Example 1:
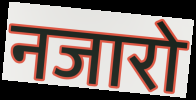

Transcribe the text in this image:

नजारो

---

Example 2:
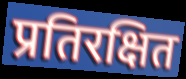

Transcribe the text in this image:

प्रतिरक्षित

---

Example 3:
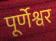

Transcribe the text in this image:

पूर्णेश्वर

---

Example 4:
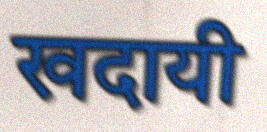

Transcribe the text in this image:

खदायी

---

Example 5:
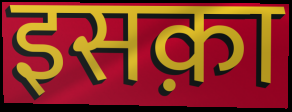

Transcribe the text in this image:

इसक़ा